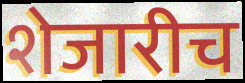
शेजारीच